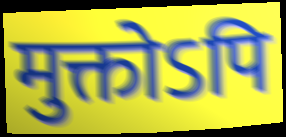
मुक्तोऽपि